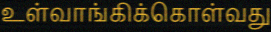
உள்வாங்கிக்கொள்வது